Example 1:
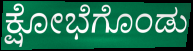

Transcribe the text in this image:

ಕ್ಷೋಭೆಗೊಂಡು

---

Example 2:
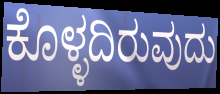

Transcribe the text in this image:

ಕೊಳ್ಳದಿರುವುದು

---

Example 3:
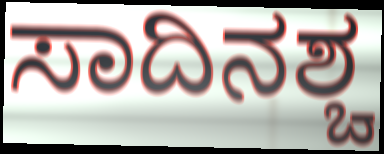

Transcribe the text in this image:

ಸಾದಿನಶ್ಚ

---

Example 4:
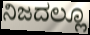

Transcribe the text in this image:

ನಿಜದಲ್ಲೂ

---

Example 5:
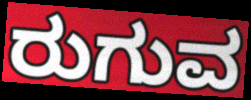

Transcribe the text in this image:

ರುಗುವ